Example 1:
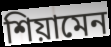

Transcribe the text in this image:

শিয়ামেন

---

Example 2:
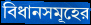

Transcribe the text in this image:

বিধানসমূহের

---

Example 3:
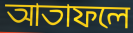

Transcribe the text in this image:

আতাফলে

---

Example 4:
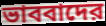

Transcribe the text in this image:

ভাববাদের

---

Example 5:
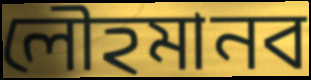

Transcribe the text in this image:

লৌহমানব